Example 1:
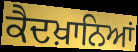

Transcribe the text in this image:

ਕੈਦਖ਼ਾਨਿਆਂ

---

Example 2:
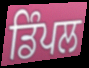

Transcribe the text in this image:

ਡਿੰਪਲ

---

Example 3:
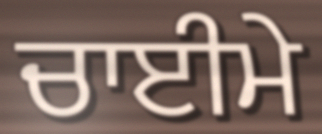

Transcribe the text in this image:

ਚਾਈਮੇ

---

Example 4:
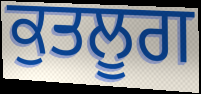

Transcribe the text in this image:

ਕੁਤਲੂਗ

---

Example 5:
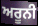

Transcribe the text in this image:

ਅਰੂਨੀ